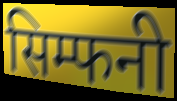
सिम्फनी